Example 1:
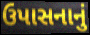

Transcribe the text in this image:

ઉપાસનાનું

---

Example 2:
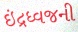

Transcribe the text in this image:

ઇંદ્રધ્વજની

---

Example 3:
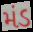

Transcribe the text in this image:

મંડ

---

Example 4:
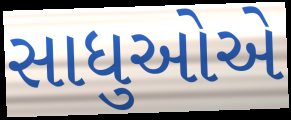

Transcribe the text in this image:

સાધુઓએ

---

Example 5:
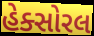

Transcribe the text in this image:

હેક્સોરલ